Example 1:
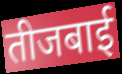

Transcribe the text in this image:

तीजबाई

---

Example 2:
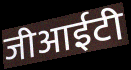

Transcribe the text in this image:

जीआईटी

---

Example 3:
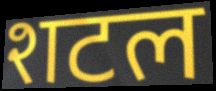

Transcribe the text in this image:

शटल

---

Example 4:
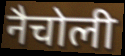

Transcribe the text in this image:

नैचोली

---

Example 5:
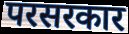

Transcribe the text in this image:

परसरकार